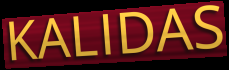
KALIDAS